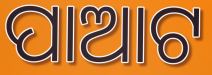
ପାଆଟ